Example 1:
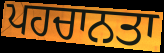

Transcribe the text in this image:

ਪਹਚਾਨਤਾ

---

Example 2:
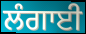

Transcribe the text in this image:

ਲੰਗਾਈ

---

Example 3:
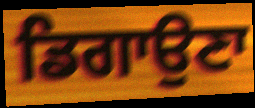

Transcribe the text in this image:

ਡਿਗਾਉਣਾ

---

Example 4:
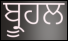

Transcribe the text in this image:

ਬ੍ਰੂਹਲ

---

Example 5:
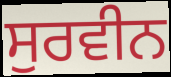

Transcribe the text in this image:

ਸੁਰਵੀਨ